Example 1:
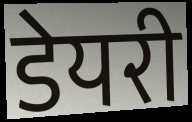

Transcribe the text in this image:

डेयरी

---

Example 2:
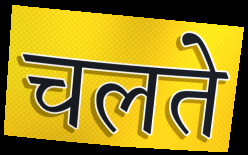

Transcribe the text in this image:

चलते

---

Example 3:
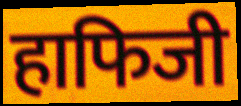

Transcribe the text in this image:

हाफिजी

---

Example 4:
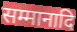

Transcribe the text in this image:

सम्मानादि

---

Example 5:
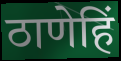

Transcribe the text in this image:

ठाणेहिं